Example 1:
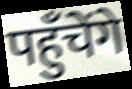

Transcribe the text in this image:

पहुँचेंगे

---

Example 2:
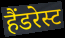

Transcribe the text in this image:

हैंडरेस्ट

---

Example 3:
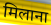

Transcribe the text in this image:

मिलाना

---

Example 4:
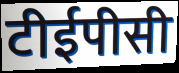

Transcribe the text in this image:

टीईपीसी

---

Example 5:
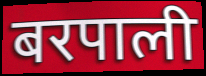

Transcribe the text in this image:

बरपाली